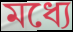
মধ্যে